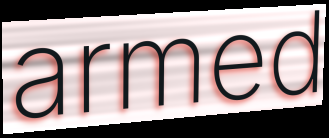
armed